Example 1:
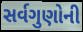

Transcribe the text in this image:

સર્વગુણોની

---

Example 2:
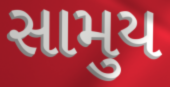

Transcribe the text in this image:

સામુય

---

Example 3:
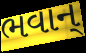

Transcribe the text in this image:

ભવાન્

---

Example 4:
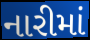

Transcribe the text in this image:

નારીમાં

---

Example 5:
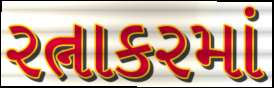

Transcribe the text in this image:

રત્નાકરમાં